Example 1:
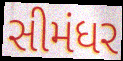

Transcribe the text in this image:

સીમંધર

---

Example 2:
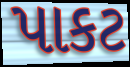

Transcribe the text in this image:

પાકટ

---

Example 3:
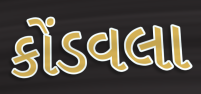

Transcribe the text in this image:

કોંડવલા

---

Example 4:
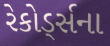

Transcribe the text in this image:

રેકોર્ડ્સના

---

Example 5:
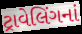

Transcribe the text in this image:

ટ્રાવેલિંગનાં